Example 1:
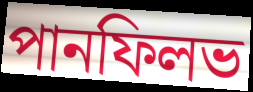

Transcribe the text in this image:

পানফিলভ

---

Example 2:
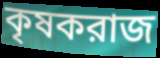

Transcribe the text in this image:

কৃষকরাজ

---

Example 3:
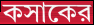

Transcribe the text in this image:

কসাকের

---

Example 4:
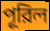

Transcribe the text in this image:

পূরিল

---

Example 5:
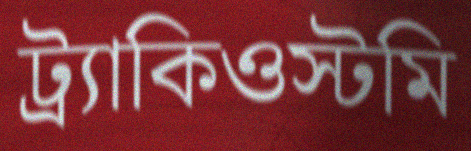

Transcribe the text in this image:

ট্র্যাকিওস্টমি